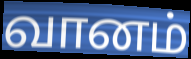
வானம்